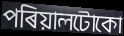
পৰিয়ালটোকো